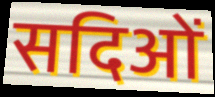
सदिओं